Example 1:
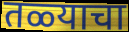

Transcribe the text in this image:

तळ्याचा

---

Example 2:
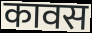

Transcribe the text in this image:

कावस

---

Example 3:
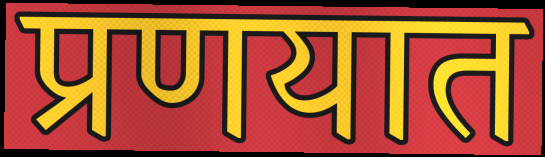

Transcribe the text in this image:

प्रणयात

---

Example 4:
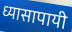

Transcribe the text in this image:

ध्यासापायी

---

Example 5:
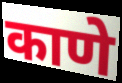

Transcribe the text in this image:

काणे